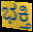
ಭಕ್ತಿ